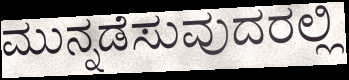
ಮುನ್ನಡೆಸುವುದರಲ್ಲಿ